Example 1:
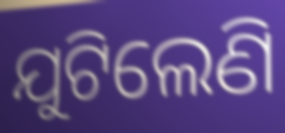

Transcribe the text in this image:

ଯୁଟିଲେଣି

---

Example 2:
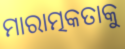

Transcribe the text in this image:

ମାରାତ୍ମକତାକୁ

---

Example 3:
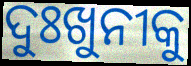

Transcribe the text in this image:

ଦୁଃଖୁନୀକୁ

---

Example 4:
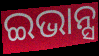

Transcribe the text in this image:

ଇଭାନ୍ସ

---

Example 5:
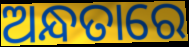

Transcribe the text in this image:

ଅନ୍ଧତାରେ